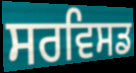
ਸਰਵਿਸਡ